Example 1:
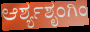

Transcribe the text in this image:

ಆರ್ಶ್ಯಶೃಂಗಿಂ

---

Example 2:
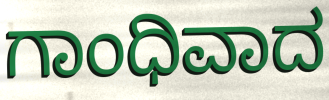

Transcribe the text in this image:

ಗಾಂಧಿವಾದ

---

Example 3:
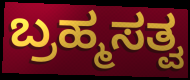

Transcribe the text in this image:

ಬ್ರಹ್ಮಸತ್ವ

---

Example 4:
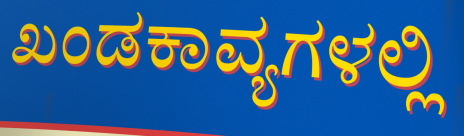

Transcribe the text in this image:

ಖಂಡಕಾವ್ಯಗಳಲ್ಲಿ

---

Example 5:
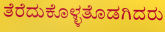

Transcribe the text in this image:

ತೆರೆದುಕೊಳ್ಳತೊಡಗಿದರು